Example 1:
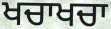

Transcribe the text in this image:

ਖਚਾਖਚਾ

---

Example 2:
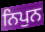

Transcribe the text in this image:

ਨਿਪੁਨ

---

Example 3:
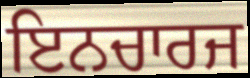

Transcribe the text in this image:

ਇਨਚਾਰਜ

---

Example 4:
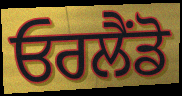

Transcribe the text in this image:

ਓਰਲੈਂਡੋ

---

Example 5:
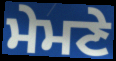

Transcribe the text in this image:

ਮੇਮਣੇ